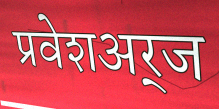
प्रवेशअर्ज